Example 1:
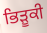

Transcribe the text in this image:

ਭਿੜੂਕੀ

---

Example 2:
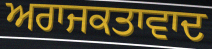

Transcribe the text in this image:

ਅਰਾਜਕਤਾਵਾਦ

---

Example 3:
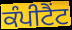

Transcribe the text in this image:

ਕੰਪੀਟੈਂਟ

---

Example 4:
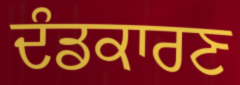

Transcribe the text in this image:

ਦੰਡਕਾਰਣ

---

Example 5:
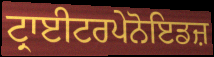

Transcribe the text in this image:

ਟ੍ਰਾਈਟਰਪੇਨੋਇਡਜ਼